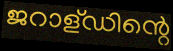
ജറാള്ഡിന്റെ